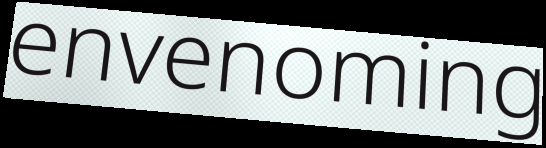
envenoming